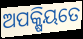
ଅପକ୍ଷିୟତେ